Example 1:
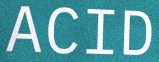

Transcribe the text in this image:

ACID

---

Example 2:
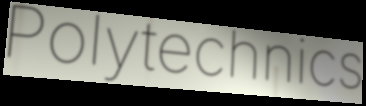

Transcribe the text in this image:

Polytechnics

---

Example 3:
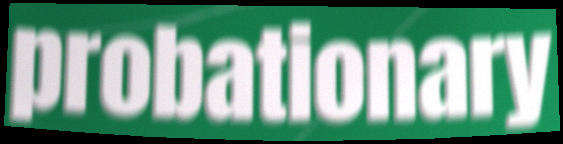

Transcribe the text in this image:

probationary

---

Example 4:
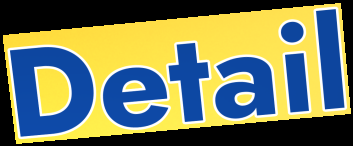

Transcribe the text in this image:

Detail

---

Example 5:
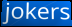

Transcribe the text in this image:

jokers